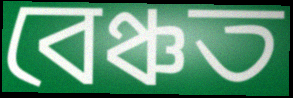
বেঞ্চত